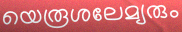
യെരൂശലേമ്യരും